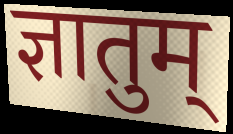
ज्ञातुम्